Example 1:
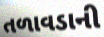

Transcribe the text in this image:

તળાવડાની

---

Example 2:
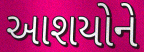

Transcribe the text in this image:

આશયોને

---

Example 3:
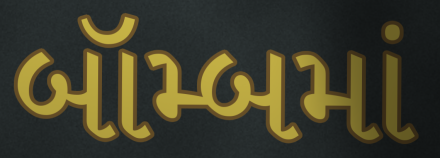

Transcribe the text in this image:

બૉમ્બમાં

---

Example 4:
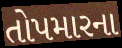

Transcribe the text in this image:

તોપમારના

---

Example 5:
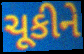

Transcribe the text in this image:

ચૂકીને